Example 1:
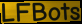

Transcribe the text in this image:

LFBots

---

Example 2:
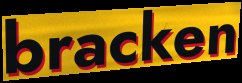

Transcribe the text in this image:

bracken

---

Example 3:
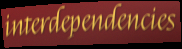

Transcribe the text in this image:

interdependencies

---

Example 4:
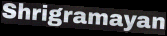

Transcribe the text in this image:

Shrigramayan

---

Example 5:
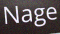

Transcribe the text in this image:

Nage